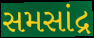
સમસાંદ્ર